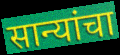
सान्यांचा